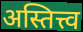
अस्तित्त्व